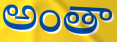
అంతా